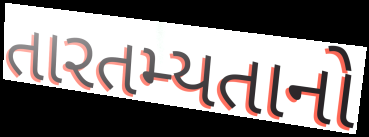
તારતમ્યતાનો